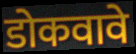
डोकवावे